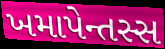
ખમાપેન્તસ્સ